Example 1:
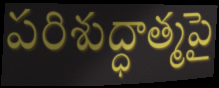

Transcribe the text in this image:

పరిశుద్ధాత్మపై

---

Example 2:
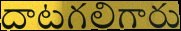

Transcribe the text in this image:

దాటగలిగారు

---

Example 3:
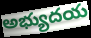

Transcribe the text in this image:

అభ్యుదయ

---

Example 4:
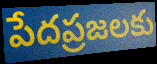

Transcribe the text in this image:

పేదప్రజలకు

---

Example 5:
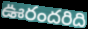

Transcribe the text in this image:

ఊరందరిది